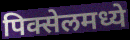
पिक्सेलमध्ये